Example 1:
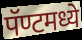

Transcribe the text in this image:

पॅण्टमध्ये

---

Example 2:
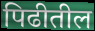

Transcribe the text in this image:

पिढीतील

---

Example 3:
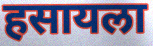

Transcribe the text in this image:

हसायला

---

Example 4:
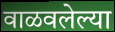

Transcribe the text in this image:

वाळवलेल्या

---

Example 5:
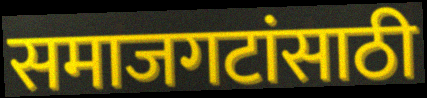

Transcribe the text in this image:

समाजगटांसाठी